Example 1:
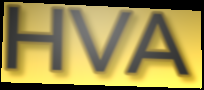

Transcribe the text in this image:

HVA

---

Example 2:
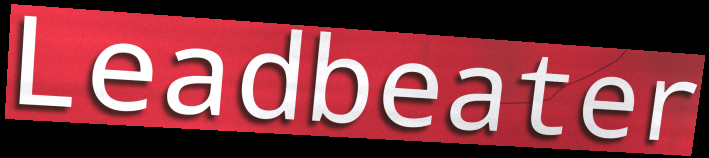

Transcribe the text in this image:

Leadbeater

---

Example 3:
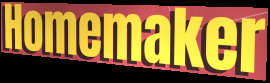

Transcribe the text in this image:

Homemaker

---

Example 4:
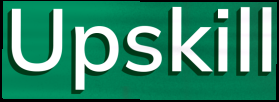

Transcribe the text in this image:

Upskill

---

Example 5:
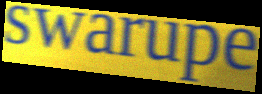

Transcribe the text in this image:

swarupe